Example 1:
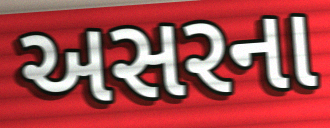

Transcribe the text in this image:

અસરના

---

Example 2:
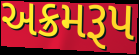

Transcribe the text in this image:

અક્રમરૂપ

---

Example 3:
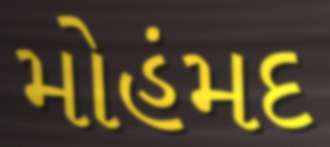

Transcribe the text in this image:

મોહંમદ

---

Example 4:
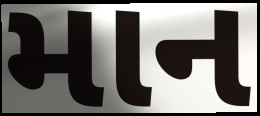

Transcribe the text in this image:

માન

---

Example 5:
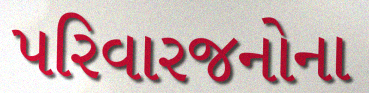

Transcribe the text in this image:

પરિવારજનોના